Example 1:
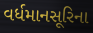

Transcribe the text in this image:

વર્ધમાનસૂરિના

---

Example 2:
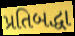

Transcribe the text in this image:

પ્રતિબદ્ધા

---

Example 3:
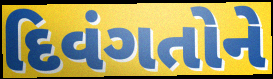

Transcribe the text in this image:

દિવંગતોને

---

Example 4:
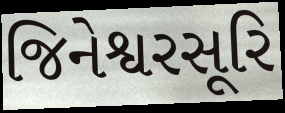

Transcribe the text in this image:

જિનેશ્વરસૂરિ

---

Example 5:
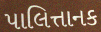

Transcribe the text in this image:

પાલિત્તાનક